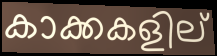
കാക്കകളില്